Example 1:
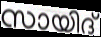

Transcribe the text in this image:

സായിദ്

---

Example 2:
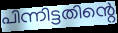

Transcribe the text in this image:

പിന്നിട്ടതിന്റെ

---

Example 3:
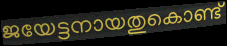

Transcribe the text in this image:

ജയേട്ടനായതുകൊണ്ട്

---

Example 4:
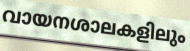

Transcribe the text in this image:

വായനശാലകളിലും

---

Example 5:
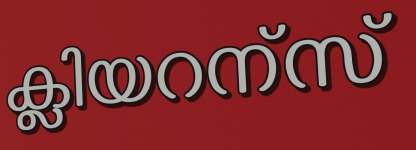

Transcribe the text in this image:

ക്ലിയറന്സ്